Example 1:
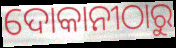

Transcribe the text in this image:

ଦୋକାନୀଠାରୁ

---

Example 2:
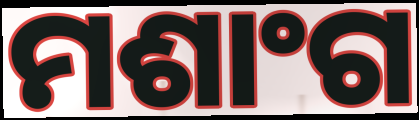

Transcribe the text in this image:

ମଶାଂଗ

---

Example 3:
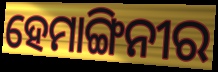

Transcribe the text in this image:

ହେମାଙ୍ଗିନୀର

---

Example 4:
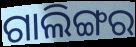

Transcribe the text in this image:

ଗାଲିଙ୍ଗର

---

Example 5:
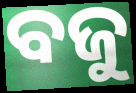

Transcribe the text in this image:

ବଜୁ